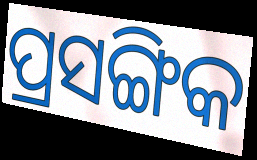
ପ୍ରସଙ୍ଗିକ